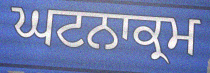
ਘਟਨਾਕ੍ਰਮ